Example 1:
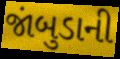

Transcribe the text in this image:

જાંબુડાની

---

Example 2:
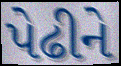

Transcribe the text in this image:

પેઢીને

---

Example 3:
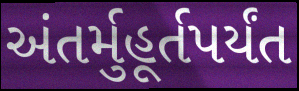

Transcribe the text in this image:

અંતર્મુહૂર્તપર્યંત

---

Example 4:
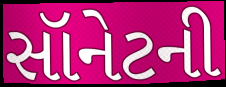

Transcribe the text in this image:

સૉનેટની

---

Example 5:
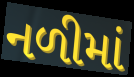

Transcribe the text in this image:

નળીમાં